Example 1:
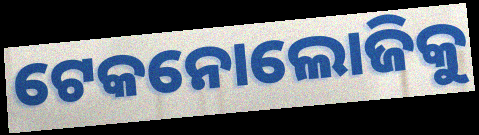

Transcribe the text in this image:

ଟେକନୋଲୋଜିକୁ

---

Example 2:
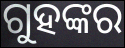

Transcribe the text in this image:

ଗୁହଙ୍କର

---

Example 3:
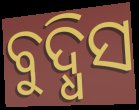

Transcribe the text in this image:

ବୁଦ୍ଧିସ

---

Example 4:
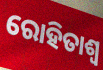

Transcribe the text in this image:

ରୋହିତାଶ୍ୱ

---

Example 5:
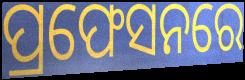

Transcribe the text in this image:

ପ୍ରଫେସନରେ